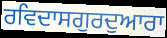
ਰਵਿਦਾਸਗੁਰਦੁਆਰਾ